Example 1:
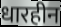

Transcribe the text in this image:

धारहीन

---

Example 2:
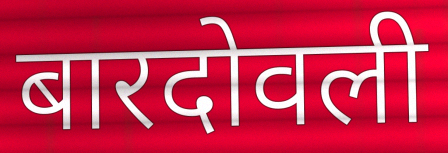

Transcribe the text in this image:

बारदोवली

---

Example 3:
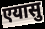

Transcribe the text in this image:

एयासु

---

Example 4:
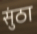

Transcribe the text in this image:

सुंठा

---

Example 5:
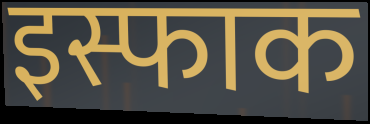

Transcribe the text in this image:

इस्फाक